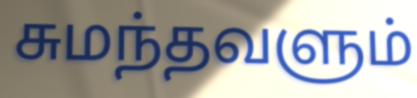
சுமந்தவளும்